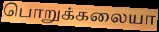
பொறுக்கலையா